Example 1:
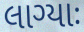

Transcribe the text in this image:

લાગ્યાઃ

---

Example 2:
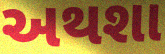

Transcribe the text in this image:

અથશા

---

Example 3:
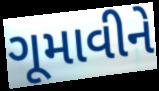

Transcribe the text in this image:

ગૂમાવીને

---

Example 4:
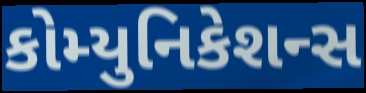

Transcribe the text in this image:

કોમ્યુનિકેશન્સ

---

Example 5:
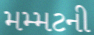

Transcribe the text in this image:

મમ્મટની